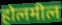
होलमील